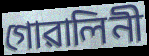
গোৱালিনী